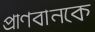
প্রাণবানকে